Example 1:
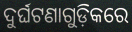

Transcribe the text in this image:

ଦୁର୍ଘଟଣାଗୁଡ଼ିକରେ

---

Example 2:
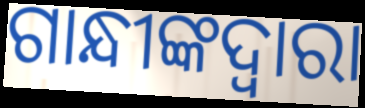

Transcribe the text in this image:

ଗାନ୍ଧୀଙ୍କଦ୍ଵାରା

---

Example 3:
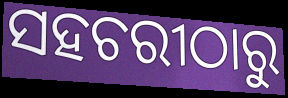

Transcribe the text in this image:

ସହଚରୀଠାରୁ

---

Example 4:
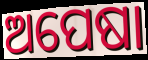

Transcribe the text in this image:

ଅପେଷା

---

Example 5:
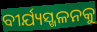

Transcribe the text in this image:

ବୀର୍ଯ୍ୟସ୍ଖଳନକୁ